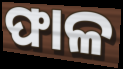
ଫାଳ